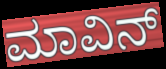
ಮಾವಿನ್